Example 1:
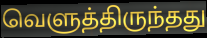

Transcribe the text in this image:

வெளுத்திருந்தது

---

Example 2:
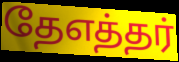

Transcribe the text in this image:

தேஎத்தர்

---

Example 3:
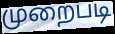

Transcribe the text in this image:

முறைபடி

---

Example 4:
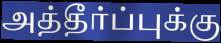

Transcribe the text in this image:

அத்தீர்ப்புக்கு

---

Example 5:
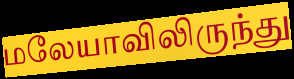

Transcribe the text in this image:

மலேயாவிலிருந்து